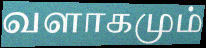
வளாகமும்